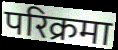
परिक्रमा